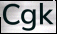
Cgk